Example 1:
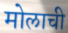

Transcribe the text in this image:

मोलाची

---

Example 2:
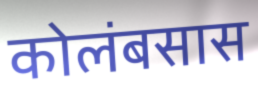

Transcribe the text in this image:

कोलंबसास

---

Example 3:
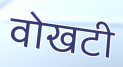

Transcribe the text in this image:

वोखटी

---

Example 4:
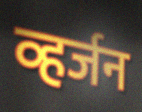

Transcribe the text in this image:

व्हर्जन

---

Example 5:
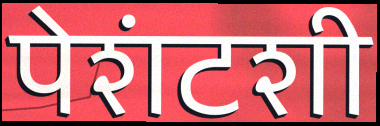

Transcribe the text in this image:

पेशंटशी